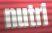
nutri